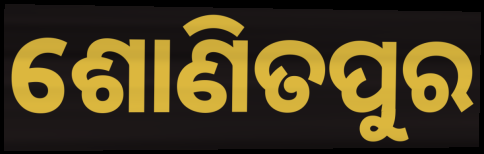
ଶୋଣିତପୁର